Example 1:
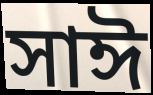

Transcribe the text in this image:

সাঈ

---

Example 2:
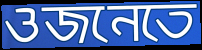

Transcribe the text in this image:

ওজনেতে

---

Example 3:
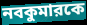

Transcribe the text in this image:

নবকুমারকে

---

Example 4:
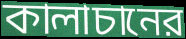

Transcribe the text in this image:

কালাচানের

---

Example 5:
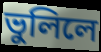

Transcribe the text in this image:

ভুলিলে